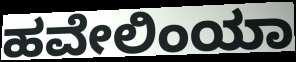
ಹವೇಲಿಂಯಾ